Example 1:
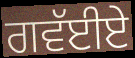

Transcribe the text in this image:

ਗਵੱਈਏ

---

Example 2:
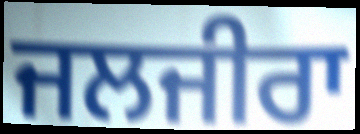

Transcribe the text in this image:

ਜਲਜੀਰਾ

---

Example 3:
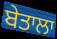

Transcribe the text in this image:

ਬੇਤਾਲਾ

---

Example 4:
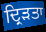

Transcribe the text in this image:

ਦ੍ਰਿੜਤਾ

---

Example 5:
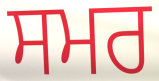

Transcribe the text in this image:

ਸਮਰ